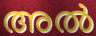
അൽ